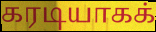
கரடியாகக்